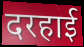
दरहाई